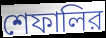
শেফালির